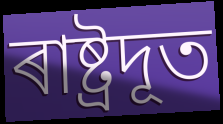
ৰাষ্ট্ৰদূত